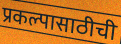
प्रकल्पासाठीची